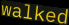
walked